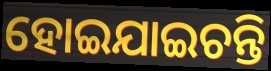
ହୋଇଯାଇଚନ୍ତି